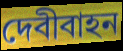
দেবীবাহন